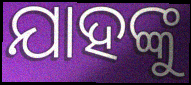
ଯାହଙ୍କୁ